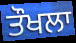
ਤੌਖਲਾ